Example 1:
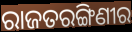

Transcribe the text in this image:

ରାଜତରଙ୍ଗିଣୀର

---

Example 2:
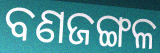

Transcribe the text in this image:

ବଣଜଙ୍ଗଳ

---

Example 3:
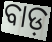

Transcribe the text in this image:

ବାଡ଼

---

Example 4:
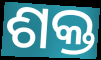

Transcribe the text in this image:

ଶକ୍ତ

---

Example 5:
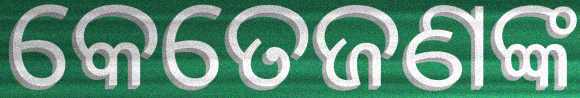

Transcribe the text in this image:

କେତେଜଣଙ୍କ